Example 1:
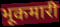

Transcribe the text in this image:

भूकमारी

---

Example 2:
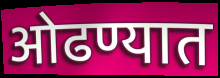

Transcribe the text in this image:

ओढण्यात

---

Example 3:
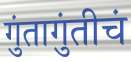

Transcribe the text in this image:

गुंतागुंतीचं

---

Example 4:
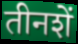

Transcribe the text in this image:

तीनशें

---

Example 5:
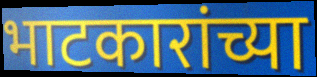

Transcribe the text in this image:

भाटकारांच्या